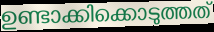
ഉണ്ടാക്കിക്കൊടുത്തത്